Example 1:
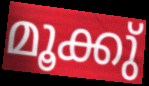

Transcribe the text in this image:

മൂക്കു്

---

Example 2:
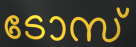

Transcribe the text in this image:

ടോസ്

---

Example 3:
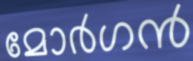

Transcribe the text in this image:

മോർഗൻ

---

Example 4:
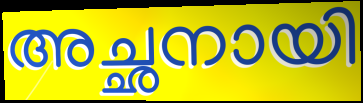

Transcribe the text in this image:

അച്ഛനായി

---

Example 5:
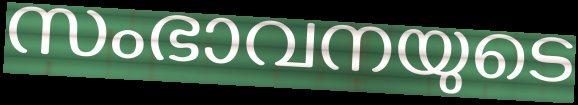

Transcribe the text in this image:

സംഭാവനയുടെ